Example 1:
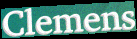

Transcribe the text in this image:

Clemens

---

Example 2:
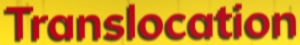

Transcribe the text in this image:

Translocation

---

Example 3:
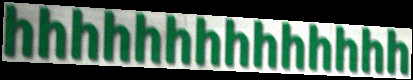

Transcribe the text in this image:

hhhhhhhhhhhhhh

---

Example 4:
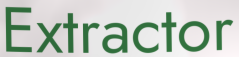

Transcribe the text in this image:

Extractor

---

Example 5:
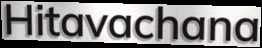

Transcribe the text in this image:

Hitavachana